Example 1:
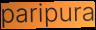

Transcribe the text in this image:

paripura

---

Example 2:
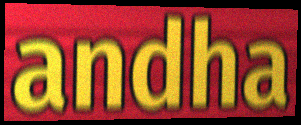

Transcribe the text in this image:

andha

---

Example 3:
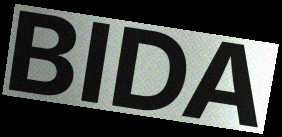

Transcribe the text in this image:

BIDA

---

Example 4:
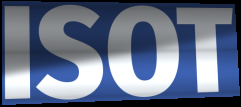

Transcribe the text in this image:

ISOT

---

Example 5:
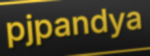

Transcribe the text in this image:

pjpandya